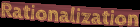
Rationalization